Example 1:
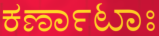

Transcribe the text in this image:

ಕರ್ಣಾಟಾಃ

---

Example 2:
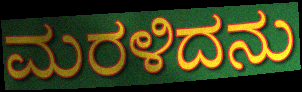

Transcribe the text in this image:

ಮರಳಿದನು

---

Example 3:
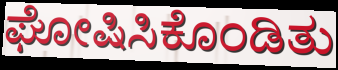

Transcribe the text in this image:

ಘೋಷಿಸಿಕೊಂಡಿತು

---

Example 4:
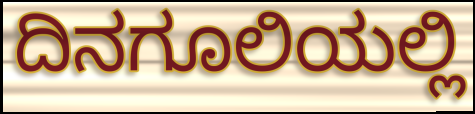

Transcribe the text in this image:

ದಿನಗೂಲಿಯಲ್ಲಿ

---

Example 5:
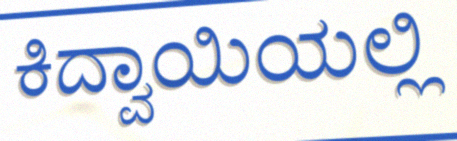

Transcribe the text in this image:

ಕಿದ್ವಾಯಿಯಲ್ಲಿ